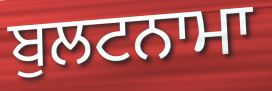
ਬੁਲਟਨਾਮਾ